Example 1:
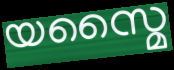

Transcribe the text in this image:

യസ്മൈ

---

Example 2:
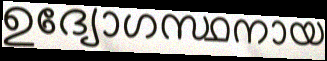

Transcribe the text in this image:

ഉദ്യോഗസ്ഥനായ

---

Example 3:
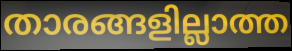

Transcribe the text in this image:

താരങ്ങളില്ലാത്ത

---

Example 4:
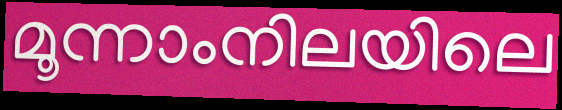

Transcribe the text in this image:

മൂന്നാംനിലയിലെ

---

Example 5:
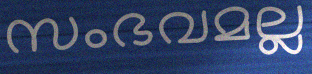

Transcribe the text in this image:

സംഭവമല്ല